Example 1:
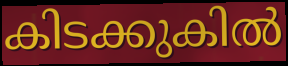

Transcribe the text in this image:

കിടക്കുകിൽ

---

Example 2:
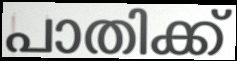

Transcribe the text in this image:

പാതിക്ക്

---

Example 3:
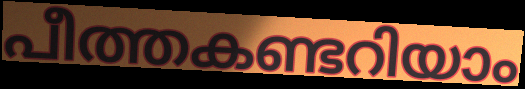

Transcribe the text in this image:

പീത്തകണ്ടറിയാം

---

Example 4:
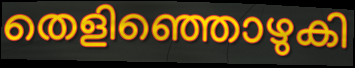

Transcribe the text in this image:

തെളിഞ്ഞൊഴുകി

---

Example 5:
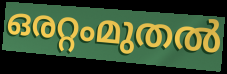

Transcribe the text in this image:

ഒരറ്റംമുതൽ